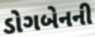
ડોગબેનની